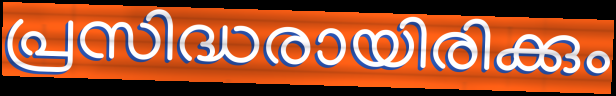
പ്രസിദ്ധരായിരിക്കും